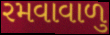
રમવાવાળુ